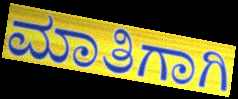
ಮಾತಿಗಾಗಿ